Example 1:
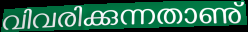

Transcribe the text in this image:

വിവരിക്കുന്നതാണു്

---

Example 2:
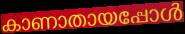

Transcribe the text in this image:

കാണാതായപ്പോൾ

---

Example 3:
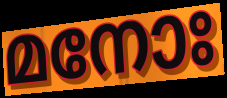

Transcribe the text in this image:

മനോഃ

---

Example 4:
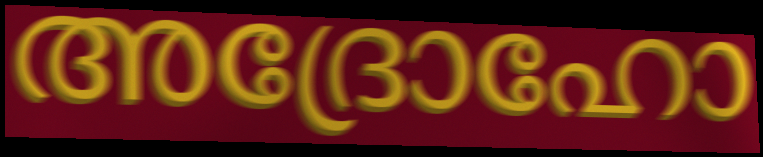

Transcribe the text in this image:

അദ്രോഹോ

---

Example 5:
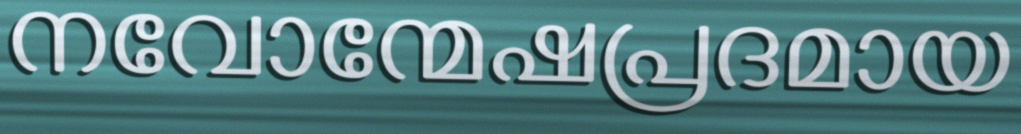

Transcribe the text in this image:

നവോന്മേഷപ്രദമായ